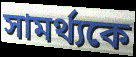
সামর্থ্যকে